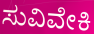
ಸುವಿವೇಕಿ